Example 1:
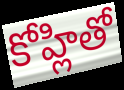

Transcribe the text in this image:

కోహ్లితో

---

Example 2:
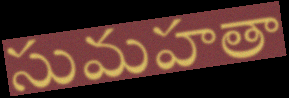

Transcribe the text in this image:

సుమహతా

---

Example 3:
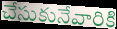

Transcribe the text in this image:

చేసుకునేవారికి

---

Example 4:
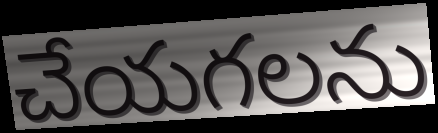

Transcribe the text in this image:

చేయగలను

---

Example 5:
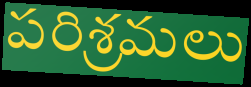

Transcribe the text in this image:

పరిశ్రమలు